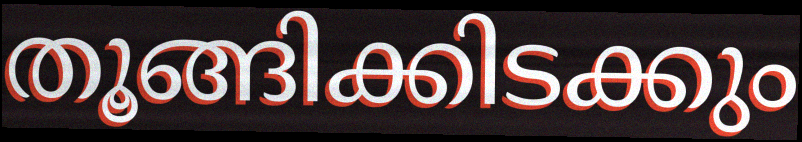
തൂങ്ങിക്കിടക്കും